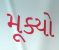
મૂક્યો